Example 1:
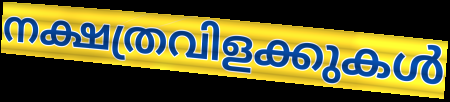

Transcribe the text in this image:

നക്ഷത്രവിളക്കുകൾ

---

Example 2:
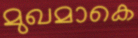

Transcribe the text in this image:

മുഖമാകെ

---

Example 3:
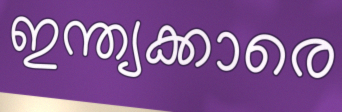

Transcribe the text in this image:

ഇന്ത്യക്കാരെ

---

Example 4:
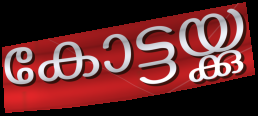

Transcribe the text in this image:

കോട്ടയ്ക്കു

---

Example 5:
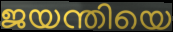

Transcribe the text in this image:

ജയന്തിയെ